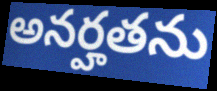
అనర్హతను